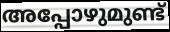
അപ്പോഴുമുണ്ട്